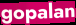
gopalan